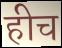
हीच